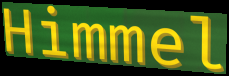
Himmel